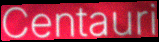
Centauri